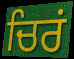
ਚਿਰਂ